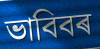
ভাবিবৰ